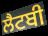
ਲੈਟਬੀ